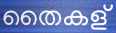
തൈകള്